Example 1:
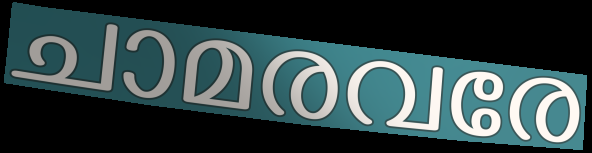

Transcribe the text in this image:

ചാമരവരേ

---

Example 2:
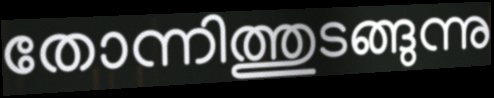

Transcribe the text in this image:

തോന്നിത്തുടങ്ങുന്നു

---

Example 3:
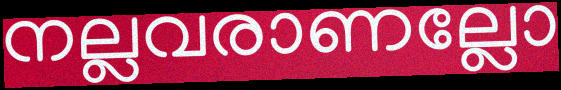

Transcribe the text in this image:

നല്ലവരാണല്ലോ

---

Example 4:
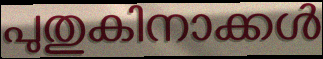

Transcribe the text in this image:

പുതുകിനാക്കൾ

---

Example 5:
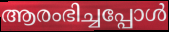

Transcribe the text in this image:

ആരംഭിച്ചപ്പോൾ